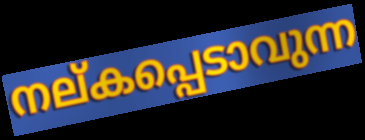
നല്കപ്പെടാവുന്ന